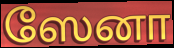
ஸேனா